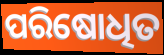
ପରିଷୋଧିତ